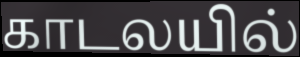
காடலயில்